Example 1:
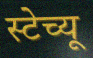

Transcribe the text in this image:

स्टेच्यू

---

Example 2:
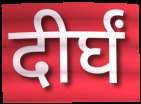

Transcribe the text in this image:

दीर्घं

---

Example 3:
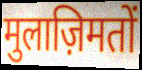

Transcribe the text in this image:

मुलाज़िमतों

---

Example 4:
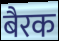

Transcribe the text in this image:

बैरक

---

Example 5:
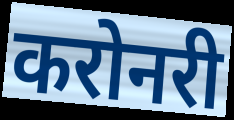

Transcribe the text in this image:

करोनरी